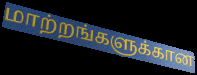
மாற்றங்களுக்கான